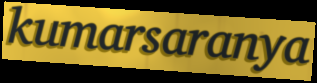
kumarsaranya